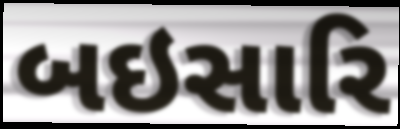
બઇસારિ